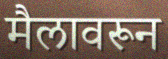
मैलावरून